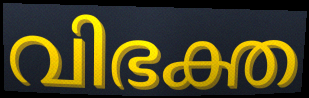
വിഭക്ത